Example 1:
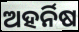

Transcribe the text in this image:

ଅହର୍ନିଷ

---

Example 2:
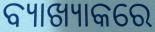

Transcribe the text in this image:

ବ୍ୟାଖ୍ୟାକରେ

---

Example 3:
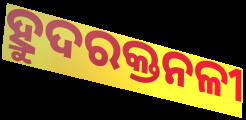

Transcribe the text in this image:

ହ୍ରୁଦରକ୍ତନଳୀ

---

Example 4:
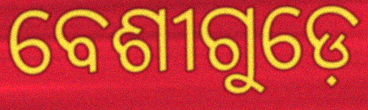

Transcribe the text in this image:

ବେଶୀଗୁଡ଼େ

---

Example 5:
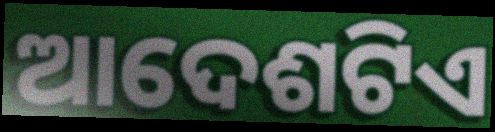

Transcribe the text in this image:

ଆଦେଶଟିଏ